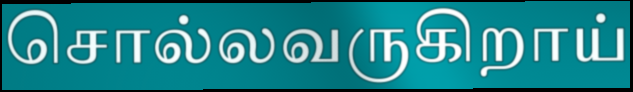
சொல்லவருகிறாய்